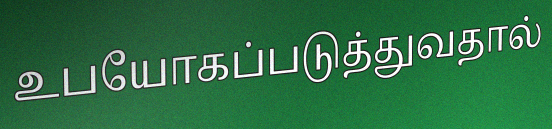
உபயோகப்படுத்துவதால்